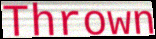
Thrown